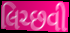
લિચ્છવી